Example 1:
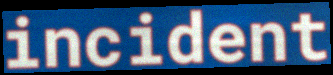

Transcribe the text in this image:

incident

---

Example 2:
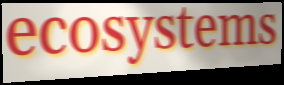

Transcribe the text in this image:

ecosystems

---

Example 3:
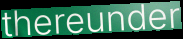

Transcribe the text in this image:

thereunder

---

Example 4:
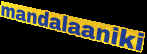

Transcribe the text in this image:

mandalaaniki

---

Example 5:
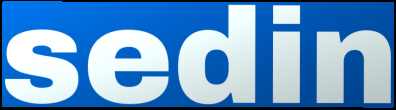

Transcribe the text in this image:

sedin